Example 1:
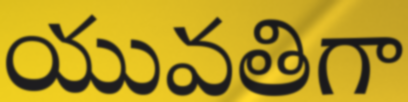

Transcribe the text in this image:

యువతిగా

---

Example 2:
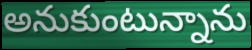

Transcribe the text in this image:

అనుకుంటున్నాను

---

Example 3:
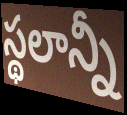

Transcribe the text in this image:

స్థలాన్నీ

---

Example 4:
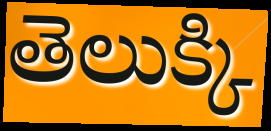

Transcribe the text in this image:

తెలుక్కి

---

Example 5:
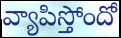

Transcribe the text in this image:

వ్యాపిస్తోందో